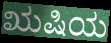
ಋಷಿಯ